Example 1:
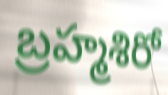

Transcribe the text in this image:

బ్రహ్మశిరో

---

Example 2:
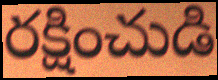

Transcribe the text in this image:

రక్షించుడి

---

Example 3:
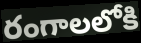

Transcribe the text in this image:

రంగాలలోకి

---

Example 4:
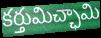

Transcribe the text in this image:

కర్తుమిచ్ఛామి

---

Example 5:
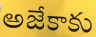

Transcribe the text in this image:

అజేకాకు